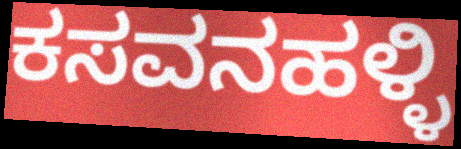
ಕಸವನಹಳ್ಳಿ